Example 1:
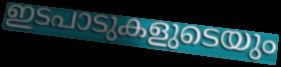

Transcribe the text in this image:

ഇടപാടുകളുടെയും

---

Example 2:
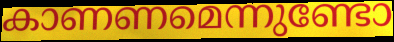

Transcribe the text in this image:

കാണണമെന്നുണ്ടോ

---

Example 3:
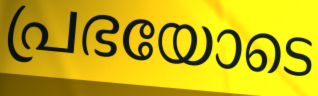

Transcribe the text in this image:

പ്രഭയോടെ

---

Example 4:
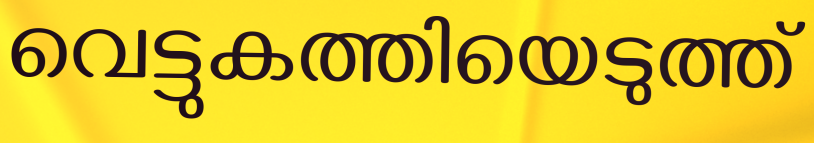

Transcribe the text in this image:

വെട്ടുകത്തിയെടുത്ത്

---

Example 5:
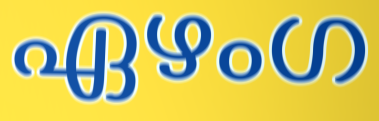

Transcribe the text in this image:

ഏഴംഗ